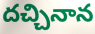
దచ్చినాన